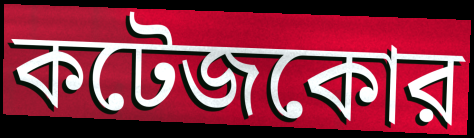
কটেজকোর